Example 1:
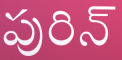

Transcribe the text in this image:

పురిన్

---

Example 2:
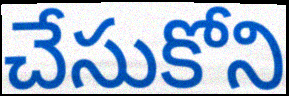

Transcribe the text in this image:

చేసుకోని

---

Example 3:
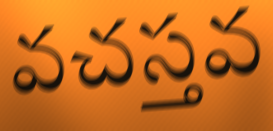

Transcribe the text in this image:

వచస్తవ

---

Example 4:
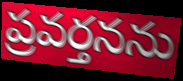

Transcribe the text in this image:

ప్రవర్తనను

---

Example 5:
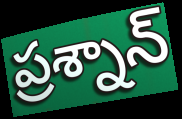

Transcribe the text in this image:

ప్రశ్నాన్